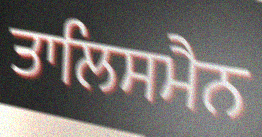
ਤਾਲਿਸਮੈਨ